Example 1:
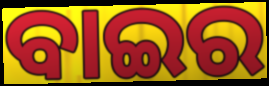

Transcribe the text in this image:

ବାଇର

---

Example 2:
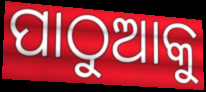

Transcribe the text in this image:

ପାଠୁଆକୁ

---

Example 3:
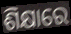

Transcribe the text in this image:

ଶିକ୍ଷାରେ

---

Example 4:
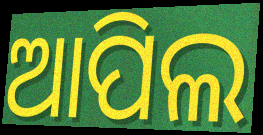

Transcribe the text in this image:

ଆପିଲ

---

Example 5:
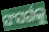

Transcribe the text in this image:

ସଂସର୍ଗକୁ